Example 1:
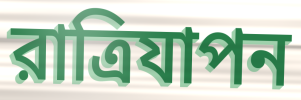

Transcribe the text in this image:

রাত্রিযাপন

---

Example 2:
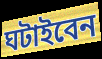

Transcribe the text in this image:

ঘটাইবেন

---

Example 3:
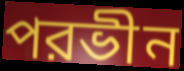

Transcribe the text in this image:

পরভীন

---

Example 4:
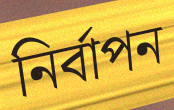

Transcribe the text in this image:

নির্বাপন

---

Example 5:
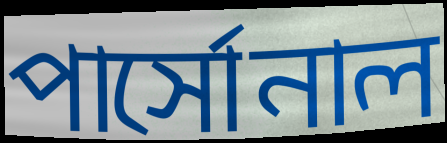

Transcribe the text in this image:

পার্সোনাল